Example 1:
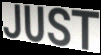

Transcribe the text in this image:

JUST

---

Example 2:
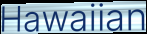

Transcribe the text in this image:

Hawaiian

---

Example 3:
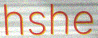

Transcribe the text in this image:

hshe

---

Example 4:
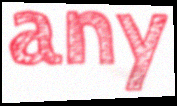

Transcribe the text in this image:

any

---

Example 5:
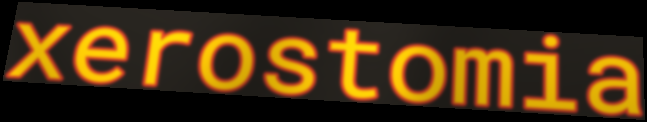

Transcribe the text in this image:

xerostomia